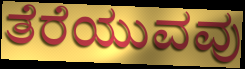
ತೆರೆಯುವವು